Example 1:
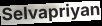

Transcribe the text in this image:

Selvapriyan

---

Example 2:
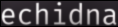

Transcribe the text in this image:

echidna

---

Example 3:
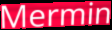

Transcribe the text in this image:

Mermin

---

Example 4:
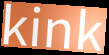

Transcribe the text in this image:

kink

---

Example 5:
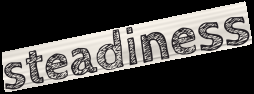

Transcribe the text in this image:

steadiness